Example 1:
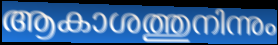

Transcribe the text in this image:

ആകാശത്തുനിന്നും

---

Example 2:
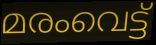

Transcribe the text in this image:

മരംവെട്ട്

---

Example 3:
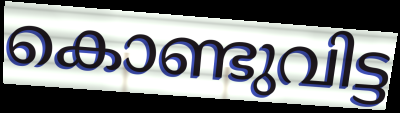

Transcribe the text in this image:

കൊണ്ടുവിട്ട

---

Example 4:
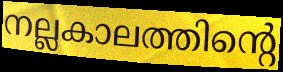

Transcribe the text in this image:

നല്ലകാലത്തിന്റെ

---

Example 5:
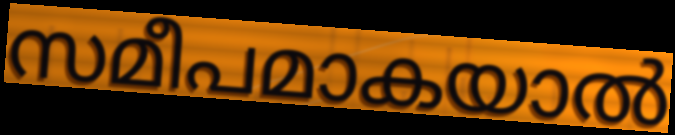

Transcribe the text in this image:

സമീപമാകയാൽ